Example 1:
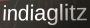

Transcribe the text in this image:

indiaglitz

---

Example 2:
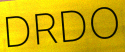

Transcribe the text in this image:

DRDO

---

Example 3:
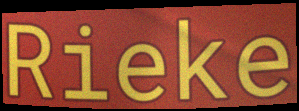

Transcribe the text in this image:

Rieke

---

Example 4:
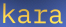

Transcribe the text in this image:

kara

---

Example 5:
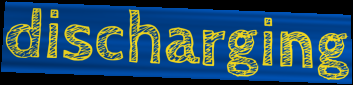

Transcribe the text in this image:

discharging